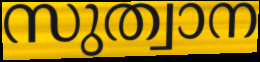
സുത്വാന